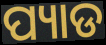
ପ୍ୟାଡ